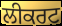
ਲੀਕਰਟ